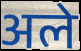
अले